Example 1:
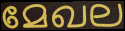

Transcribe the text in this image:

മേഖല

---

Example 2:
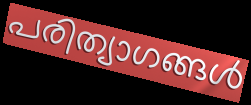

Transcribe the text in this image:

പരിത്യാഗങ്ങൾ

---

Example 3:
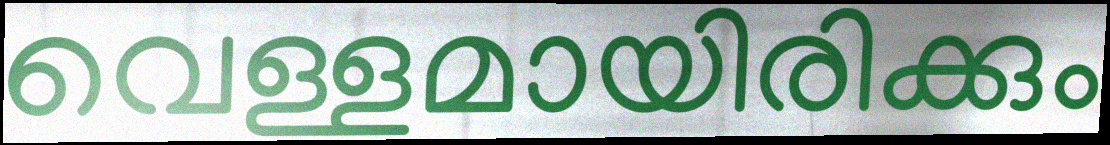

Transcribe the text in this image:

വെള്ളമായിരിക്കും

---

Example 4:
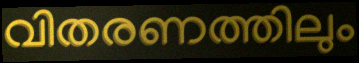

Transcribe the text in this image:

വിതരണത്തിലും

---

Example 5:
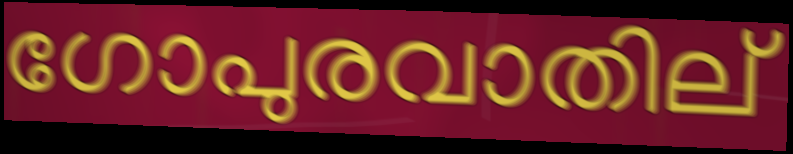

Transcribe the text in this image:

ഗോപുരവാതില്